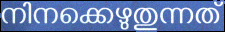
നിനക്കെഴുതുന്നത്